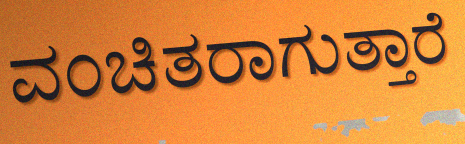
ವಂಚಿತರಾಗುತ್ತಾರೆ